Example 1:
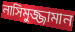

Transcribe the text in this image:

নাসিমুজ্জামান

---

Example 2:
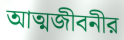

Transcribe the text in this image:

আত্মজীবনীর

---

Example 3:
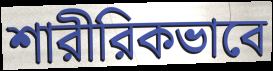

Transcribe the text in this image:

শারীরিকভাবে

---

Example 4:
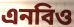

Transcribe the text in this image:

এনবিও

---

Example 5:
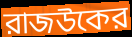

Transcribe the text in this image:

রাজউকের